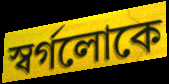
স্বর্গলোকে